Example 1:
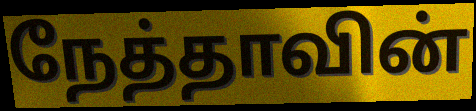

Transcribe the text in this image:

நேத்தாவின்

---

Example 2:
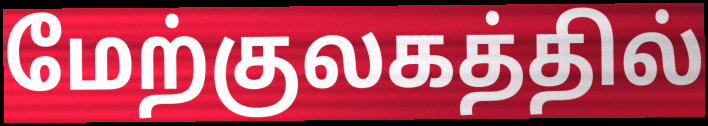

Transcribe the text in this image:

மேற்குலகத்தில்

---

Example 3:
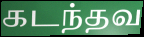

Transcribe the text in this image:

கடந்தவ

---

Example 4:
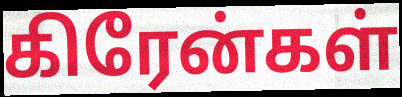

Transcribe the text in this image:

கிரேன்கள்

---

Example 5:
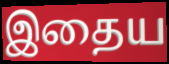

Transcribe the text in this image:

இதைய